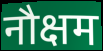
नौक्षम